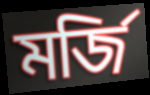
মর্জি